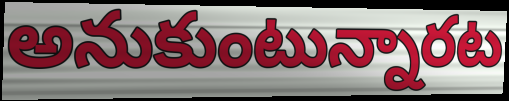
అనుకుంటున్నారట